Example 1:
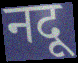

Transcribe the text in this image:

नदू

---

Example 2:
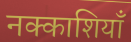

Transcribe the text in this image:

नक्काशियाँ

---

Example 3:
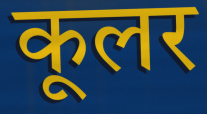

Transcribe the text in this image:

कूलर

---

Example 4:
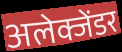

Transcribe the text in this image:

अलेक्जेंडर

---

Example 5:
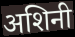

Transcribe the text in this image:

अशिनी